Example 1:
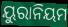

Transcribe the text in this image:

ୟୁରାନିୟମ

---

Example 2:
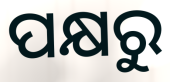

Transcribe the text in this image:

ପକ୍ଷରୁ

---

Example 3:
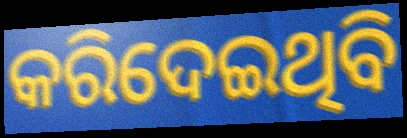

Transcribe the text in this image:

କରିଦେଇଥିବି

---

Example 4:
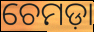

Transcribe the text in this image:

ଚେମଡ଼ା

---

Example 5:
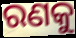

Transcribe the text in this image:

ରଣକୁ